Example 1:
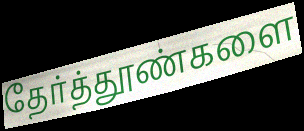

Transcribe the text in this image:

தேர்த்தூண்களை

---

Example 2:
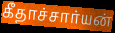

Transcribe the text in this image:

கீதாச்சார்யன்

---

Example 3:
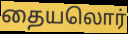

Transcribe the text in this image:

தையலொர்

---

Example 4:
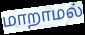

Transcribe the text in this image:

மாறாமல்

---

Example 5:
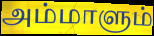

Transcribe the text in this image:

அம்மாளும்